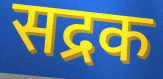
सद्रक